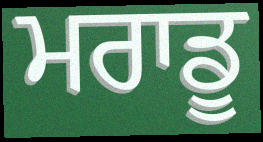
ਮਰਾਡੂ